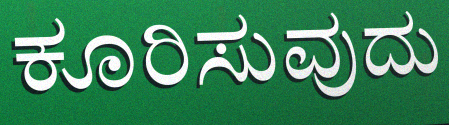
ಕೂರಿಸುವುದು